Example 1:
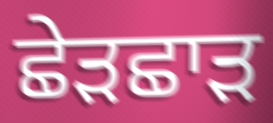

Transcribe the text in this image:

ਛੇੜਛਾੜ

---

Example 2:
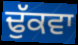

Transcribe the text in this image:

ਢੁੱਕਵਾ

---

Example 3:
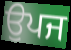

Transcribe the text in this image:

ਉਪਜ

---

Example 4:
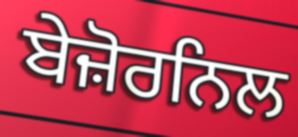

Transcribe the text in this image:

ਬੇਜ਼ੋਰਨਿਲ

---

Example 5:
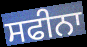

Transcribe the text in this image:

ਸਫੀਨਾ